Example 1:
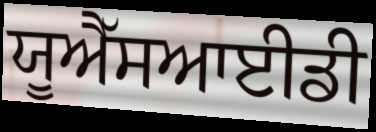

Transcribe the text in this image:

ਯੂਐੱਸਆਈਡੀ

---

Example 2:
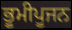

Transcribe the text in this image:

ਭੂਮੀਪੂਜਨ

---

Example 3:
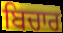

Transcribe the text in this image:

ਬਿਚਾਰ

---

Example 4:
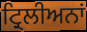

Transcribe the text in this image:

ਟ੍ਰਿਲੀਅਨਾਂ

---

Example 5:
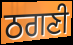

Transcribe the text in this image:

ਠਗਣੀ